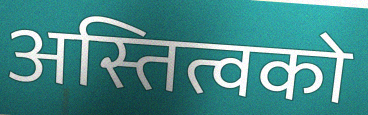
अस्तित्वको